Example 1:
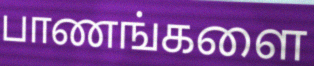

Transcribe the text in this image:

பாணங்களை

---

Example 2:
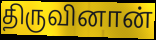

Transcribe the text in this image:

திருவினான்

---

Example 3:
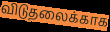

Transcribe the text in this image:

விடுதலைக்காக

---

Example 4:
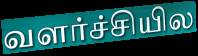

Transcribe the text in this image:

வளர்ச்சியில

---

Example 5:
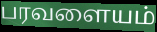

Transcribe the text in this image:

பரவளையம்